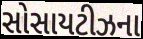
સોસાયટીઝના